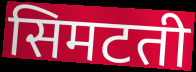
सिमटती